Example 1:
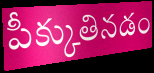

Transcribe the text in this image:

పీక్కుతినడం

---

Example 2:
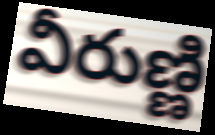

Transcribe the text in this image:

వీరుణ్ణి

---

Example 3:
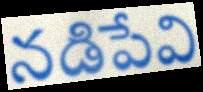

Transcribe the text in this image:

నడిపేవి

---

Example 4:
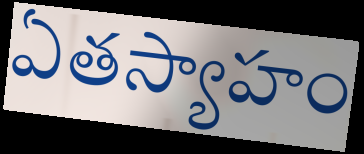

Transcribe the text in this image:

ఏతస్యాహం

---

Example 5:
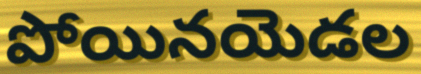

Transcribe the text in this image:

పోయినయెడల